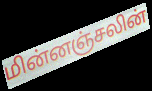
மின்னஞ்சலின்